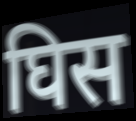
घिस